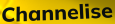
Channelise